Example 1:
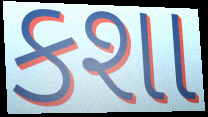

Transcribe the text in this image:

કશા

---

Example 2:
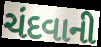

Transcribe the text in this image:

ચંદવાની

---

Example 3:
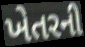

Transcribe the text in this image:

ખેતરની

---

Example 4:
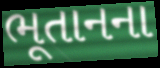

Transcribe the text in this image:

ભૂતાનના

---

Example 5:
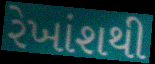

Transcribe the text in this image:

રેખાંશથી